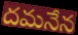
దమనేన